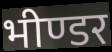
भीण्डर